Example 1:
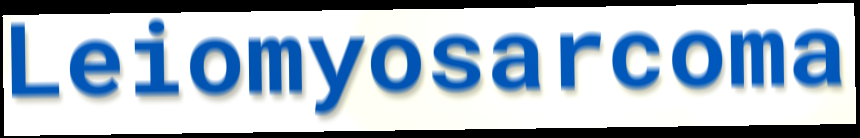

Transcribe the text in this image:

Leiomyosarcoma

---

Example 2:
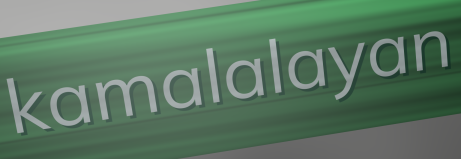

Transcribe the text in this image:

kamalalayan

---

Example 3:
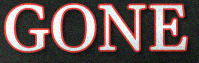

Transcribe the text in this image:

GONE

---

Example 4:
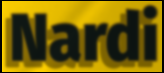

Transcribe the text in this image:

Nardi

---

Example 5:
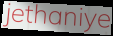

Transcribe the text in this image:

jethaniye